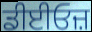
ਡੀਈਓਜ਼